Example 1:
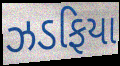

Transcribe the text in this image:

ઝડફિયા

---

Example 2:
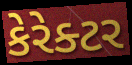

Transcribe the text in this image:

કેરેક્ટર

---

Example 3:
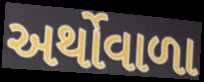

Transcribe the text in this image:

અર્થોવાળા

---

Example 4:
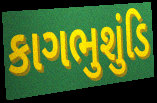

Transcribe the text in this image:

કાગભુશુંડિ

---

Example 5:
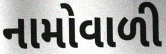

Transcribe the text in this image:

નામોવાળી